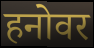
हनोवर